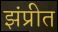
झंप्रीत